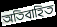
অতিবাহিত